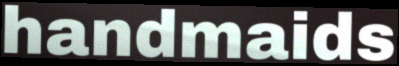
handmaids